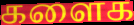
களைக